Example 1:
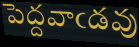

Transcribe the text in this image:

పెద్దవాఁడవు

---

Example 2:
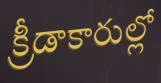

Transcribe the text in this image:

క్రీడాకారుల్లో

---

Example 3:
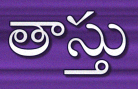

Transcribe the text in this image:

తాస్తు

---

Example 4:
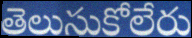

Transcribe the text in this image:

తెలుసుకోలేరు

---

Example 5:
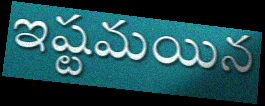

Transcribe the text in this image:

ఇష్టమయిన